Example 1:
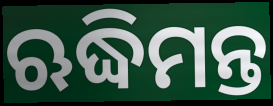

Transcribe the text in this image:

ଋଦ୍ଧିମନ୍ତ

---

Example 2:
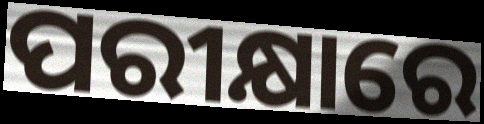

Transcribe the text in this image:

ପରୀକ୍ଷାରେ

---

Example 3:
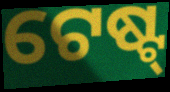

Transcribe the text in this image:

ଟେଷ୍ଟ୍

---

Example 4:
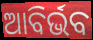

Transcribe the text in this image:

ଆବିର୍ଭବ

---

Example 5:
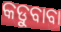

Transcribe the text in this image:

କଡୁବାବା